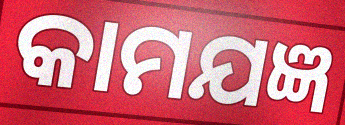
କାମଯଜ୍ଞ